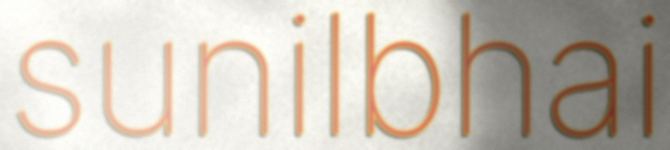
sunilbhai